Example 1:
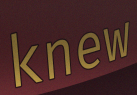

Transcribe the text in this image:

knew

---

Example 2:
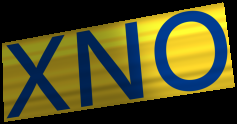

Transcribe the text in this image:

XNO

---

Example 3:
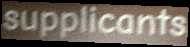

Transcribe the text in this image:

supplicants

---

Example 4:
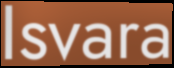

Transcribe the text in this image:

Isvara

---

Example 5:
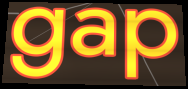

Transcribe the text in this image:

gap